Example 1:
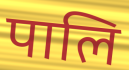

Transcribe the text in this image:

पालि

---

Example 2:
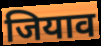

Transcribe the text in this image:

जियाव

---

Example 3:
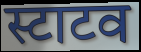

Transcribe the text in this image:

स्टाटव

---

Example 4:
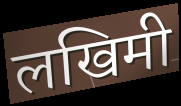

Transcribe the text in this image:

लखिमी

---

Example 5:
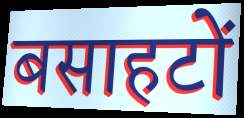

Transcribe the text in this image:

बसाहटों